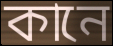
কানে